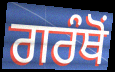
ਗਰੰਥੋਂ